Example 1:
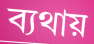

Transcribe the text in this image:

ব্যথায়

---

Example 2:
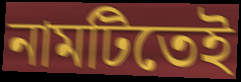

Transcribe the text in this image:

নামটিতেই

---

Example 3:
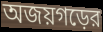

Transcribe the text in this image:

অজয়গড়ের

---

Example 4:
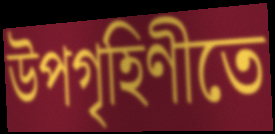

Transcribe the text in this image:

উপগৃহিণীতে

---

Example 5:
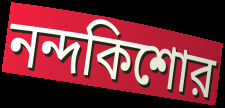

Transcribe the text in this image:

নন্দকিশোর